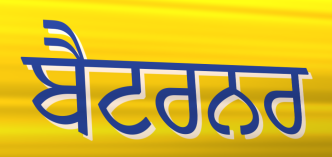
ਬੈਟਰਨਰ